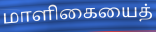
மாளிகையைத்